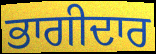
ਭਾਗੀਦਾਰ